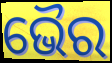
ଭୈର